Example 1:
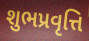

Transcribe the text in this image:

શુભપ્રવૃત્તિ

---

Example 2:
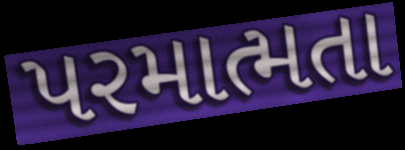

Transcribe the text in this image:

પરમાત્મતા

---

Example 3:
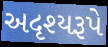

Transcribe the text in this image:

અદૃશ્યરૂપે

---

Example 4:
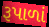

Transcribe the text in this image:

રૂપાળાં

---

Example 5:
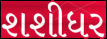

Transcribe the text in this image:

શશીધર